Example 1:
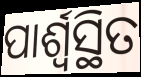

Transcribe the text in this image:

ପାର୍ଶ୍ୱସ୍ଥିତ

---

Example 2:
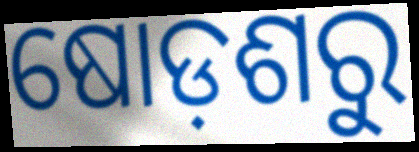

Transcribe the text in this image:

ଷୋଡ଼ଶରୁ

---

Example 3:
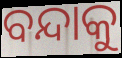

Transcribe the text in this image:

ବନ୍ଦାକୁ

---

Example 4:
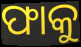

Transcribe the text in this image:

ଫାକୁ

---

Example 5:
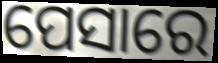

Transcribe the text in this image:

ପେସାରେ